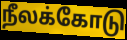
நீலக்கோடு